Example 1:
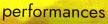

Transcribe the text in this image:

performances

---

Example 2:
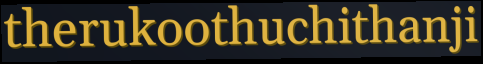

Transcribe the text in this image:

therukoothuchithanji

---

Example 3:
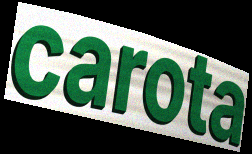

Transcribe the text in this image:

carota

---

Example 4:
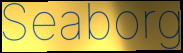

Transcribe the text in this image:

Seaborg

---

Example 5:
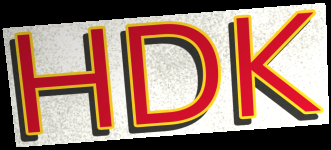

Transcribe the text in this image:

HDK